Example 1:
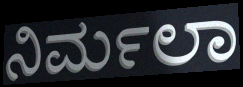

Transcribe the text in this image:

ನಿರ್ಮಲಾ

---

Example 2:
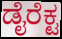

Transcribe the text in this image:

ಡೈರೆಕ್ಟ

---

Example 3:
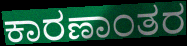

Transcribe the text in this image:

ಕಾರಣಾಂತರ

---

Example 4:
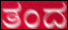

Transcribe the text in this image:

ತಂದ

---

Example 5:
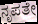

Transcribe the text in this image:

ನೃಪತೇ